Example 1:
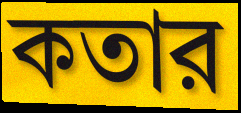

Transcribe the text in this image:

কতার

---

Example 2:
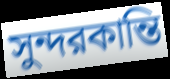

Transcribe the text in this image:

সুন্দরকান্তি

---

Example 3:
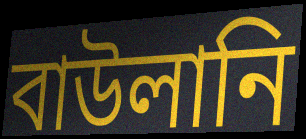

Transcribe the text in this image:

বাউলানি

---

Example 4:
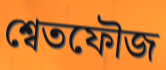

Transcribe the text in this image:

শ্বেতফৌজ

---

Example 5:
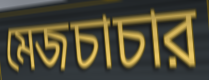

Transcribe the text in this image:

মেজচাচার